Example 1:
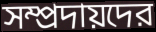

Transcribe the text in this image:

সম্প্রদায়দের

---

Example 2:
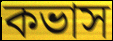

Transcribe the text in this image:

কভাস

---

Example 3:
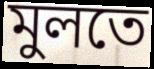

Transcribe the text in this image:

মুলতে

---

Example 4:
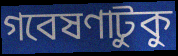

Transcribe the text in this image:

গবেষণাটুকু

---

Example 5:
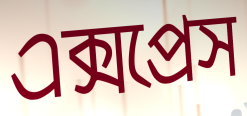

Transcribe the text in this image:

এক্সপ্রেস